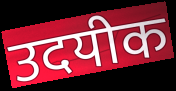
उदयीक